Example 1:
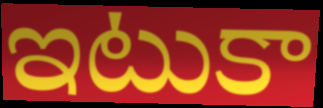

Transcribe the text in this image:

ఇటుకా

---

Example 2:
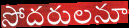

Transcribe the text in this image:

సోదరులనూ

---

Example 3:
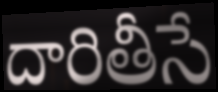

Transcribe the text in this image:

దారితీసే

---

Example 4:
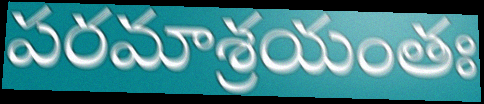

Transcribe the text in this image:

పరమాశ్రయంతః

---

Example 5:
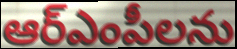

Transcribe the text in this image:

ఆర్ఎంపీలను